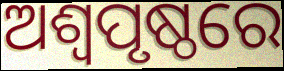
ଅଶ୍ୱପୃଷ୍ଠରେ